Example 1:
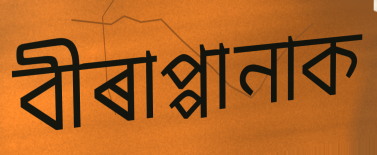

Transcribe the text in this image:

বীৰাপ্পানাক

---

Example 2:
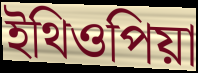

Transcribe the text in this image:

ইথিওপিয়া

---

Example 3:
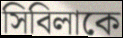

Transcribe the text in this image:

সিবিলাকে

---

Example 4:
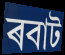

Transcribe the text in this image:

ৰবাট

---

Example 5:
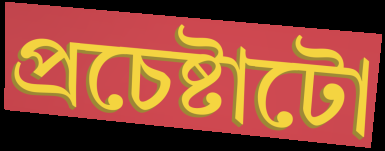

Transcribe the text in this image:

প্ৰচেষ্টাটো